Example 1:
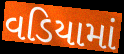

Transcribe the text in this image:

વડિયામાં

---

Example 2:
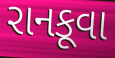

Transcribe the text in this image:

રાનકૂવા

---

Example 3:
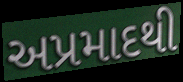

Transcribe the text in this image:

અપ્રમાદથી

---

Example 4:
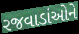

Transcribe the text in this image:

રજવાડાંઓને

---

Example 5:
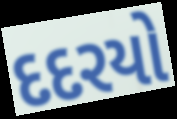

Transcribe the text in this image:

દદરયો